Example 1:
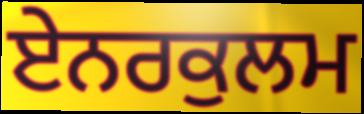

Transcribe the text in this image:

ਏਨਰਕੁਲਮ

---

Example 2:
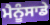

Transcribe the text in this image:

ਮੈਨੂੰਸਾਡੇ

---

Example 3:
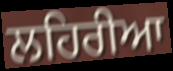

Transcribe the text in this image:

ਲਹਿਰੀਆ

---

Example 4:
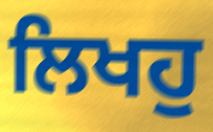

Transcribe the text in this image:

ਲਿਖਹੁ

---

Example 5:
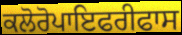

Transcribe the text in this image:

ਕਲੋਰੋਪਾਇਫਰੀਫਾਸ